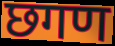
छगण